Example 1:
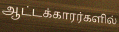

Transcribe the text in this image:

ஆட்டக்காரர்களில்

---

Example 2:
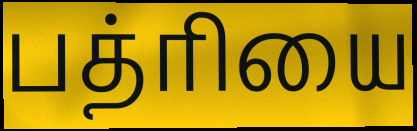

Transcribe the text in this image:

பத்ரியை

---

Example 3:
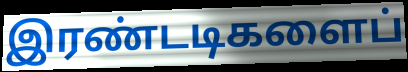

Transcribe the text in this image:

இரண்டடிகளைப்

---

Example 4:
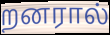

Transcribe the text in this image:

றனரால்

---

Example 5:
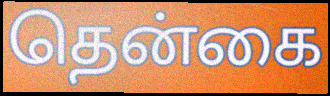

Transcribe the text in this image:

தென்கை